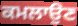
ਕਮਲਾਉਣ